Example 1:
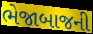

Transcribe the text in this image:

ભેજાબાજની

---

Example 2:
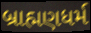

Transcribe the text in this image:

બ્રાહ્મણધર્મ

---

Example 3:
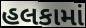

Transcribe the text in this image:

હલકામાં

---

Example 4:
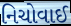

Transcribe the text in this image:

નિચોવાઈ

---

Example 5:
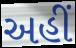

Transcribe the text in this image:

અહીં